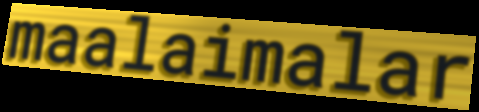
maalaimalar